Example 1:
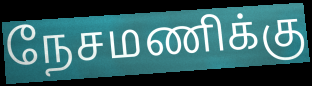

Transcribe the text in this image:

நேசமணிக்கு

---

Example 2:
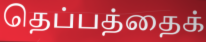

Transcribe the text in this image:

தெப்பத்தைக்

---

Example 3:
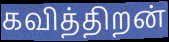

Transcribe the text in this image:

கவித்திறன்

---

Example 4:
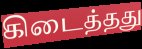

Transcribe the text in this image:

கிடைத்தது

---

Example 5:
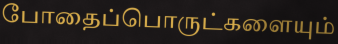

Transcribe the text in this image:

போதைப்பொருட்களையும்